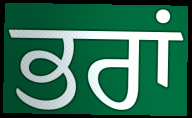
ਭਰਾਂ